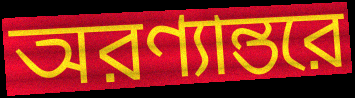
অরণ্যান্তরে